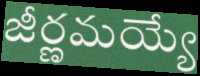
జీర్ణమయ్యే